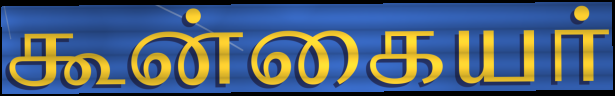
கூன்கையர்